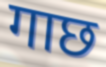
गाछ